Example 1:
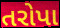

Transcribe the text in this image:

તરોપા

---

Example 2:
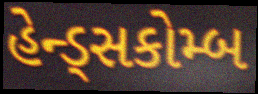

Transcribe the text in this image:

હેન્ડ્સકોમ્બ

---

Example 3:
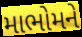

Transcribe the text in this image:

માભોમને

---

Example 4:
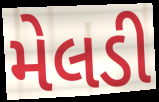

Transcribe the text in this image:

મેલડી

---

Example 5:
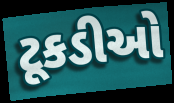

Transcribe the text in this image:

ટૂકડીઓ